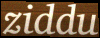
ziddu